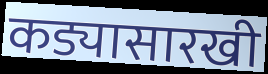
कड्यासारखी